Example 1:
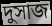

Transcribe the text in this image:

দুসাজ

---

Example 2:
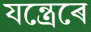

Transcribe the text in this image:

যন্ত্ৰেৰে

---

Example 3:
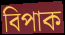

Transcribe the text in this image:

বিপাক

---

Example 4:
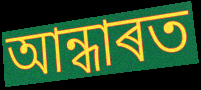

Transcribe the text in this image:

আন্ধাৰত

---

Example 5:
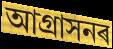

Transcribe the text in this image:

আগ্ৰাসনৰ